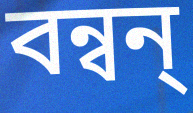
বন্বন্